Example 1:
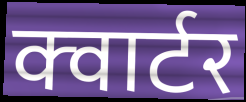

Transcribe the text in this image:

क्‍वार्टर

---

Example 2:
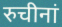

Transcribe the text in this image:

रुचीनां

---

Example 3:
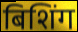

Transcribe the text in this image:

बिशिंग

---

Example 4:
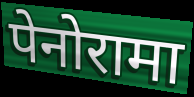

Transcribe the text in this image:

पेनोरामा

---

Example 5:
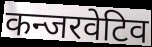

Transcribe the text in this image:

कन्जरवेटिव